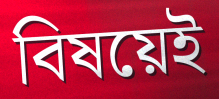
বিষয়েই